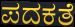
ಪದಕತೆ